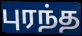
புரந்த